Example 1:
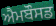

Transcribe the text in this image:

ਐਮਬੌਸਡ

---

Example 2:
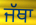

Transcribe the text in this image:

ਜੱਥਾ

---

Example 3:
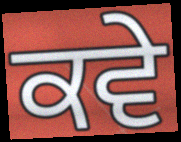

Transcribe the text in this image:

ਕਵੇ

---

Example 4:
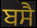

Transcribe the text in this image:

ਬਸੈ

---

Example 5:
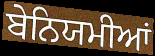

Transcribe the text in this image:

ਬੇਨਿਯਮੀਆਂ